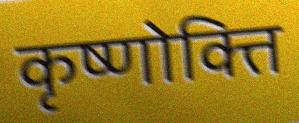
कृष्णोक्ति